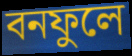
বনফুলে